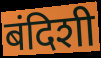
बंदिशी